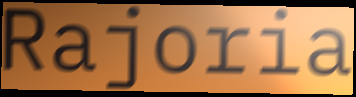
Rajoria